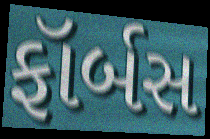
ફૉર્બસ